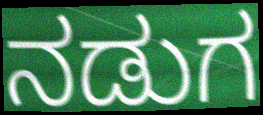
ನಡುಗ